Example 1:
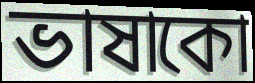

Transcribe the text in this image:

ভাষাকো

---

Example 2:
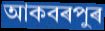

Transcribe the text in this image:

আকবৰপুৰ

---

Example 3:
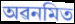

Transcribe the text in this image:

অৱনমিত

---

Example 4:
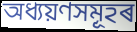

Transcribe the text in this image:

অধ্যয়ণসমূহৰ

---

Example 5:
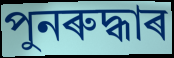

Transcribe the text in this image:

পুনৰুদ্ধাৰ